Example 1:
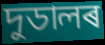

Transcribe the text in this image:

দুডালৰ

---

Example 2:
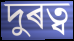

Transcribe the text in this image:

দুৰত্ব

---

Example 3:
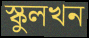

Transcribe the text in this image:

স্কুলখন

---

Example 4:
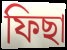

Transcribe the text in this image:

ফিছা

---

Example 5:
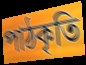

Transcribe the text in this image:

পাঠকৃতি